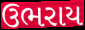
ઉભરાય